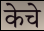
केचे